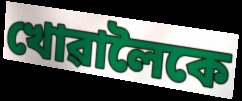
খোৱালৈকে